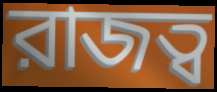
রাজত্ব